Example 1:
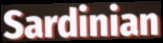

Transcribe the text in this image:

Sardinian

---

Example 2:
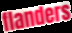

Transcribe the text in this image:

flanders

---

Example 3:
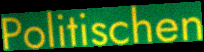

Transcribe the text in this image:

Politischen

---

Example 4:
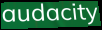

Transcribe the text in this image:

audacity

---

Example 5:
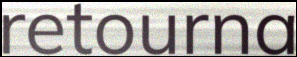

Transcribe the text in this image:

retourna